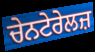
ਚੇਨਟੇਰੇਲਜ਼